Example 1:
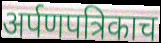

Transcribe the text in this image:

अर्पणपत्रिकाच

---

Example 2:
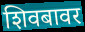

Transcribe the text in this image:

शिवबावर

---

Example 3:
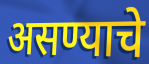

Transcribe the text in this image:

असण्याचे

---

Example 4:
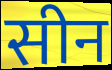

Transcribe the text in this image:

सीन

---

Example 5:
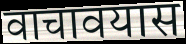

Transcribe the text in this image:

वाचावयास